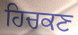
ਹਿਚਕਣ